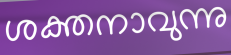
ശക്തനാവുന്നു